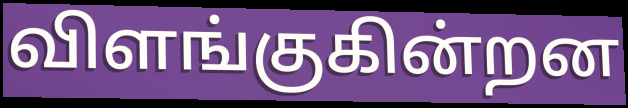
விளங்குகின்றன